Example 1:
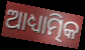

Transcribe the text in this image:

ଆଧ୍ୟାତ୍ମିକ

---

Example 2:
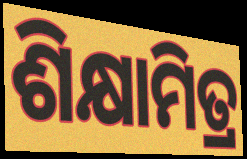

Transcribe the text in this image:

ଶିକ୍ଷାମିତ୍ର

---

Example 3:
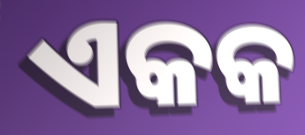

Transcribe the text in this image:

ଏକକ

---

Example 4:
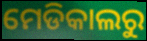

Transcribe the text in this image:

ମେଡିକାଲରୁ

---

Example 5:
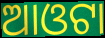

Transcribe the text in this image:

ଆଓଟା